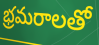
భ్రమరాలతో